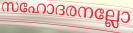
സഹോദരനല്ലോ